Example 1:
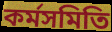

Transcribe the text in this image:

কর্মসমিতি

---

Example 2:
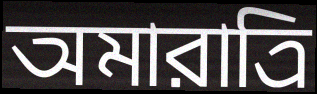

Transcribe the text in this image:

অমারাত্রি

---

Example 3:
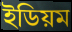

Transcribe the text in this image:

ইডিয়ম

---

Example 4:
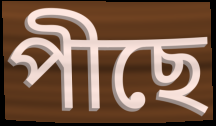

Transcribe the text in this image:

পীছে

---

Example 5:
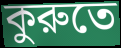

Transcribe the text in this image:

কুরুতে